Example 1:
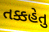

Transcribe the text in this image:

તક્કહેતુ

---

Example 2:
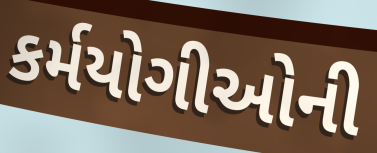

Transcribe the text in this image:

કર્મયોગીઓની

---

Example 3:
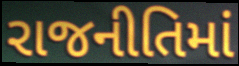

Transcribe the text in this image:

રાજનીતિમાં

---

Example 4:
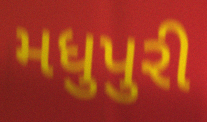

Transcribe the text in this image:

મધુપુરી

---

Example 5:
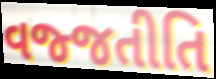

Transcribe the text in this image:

વજ્જતીતિ